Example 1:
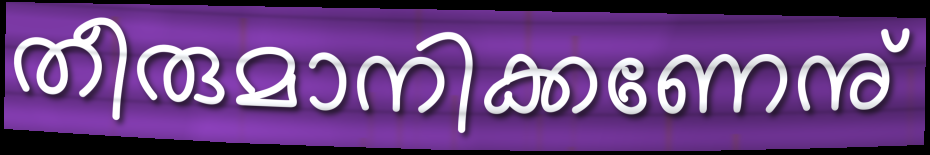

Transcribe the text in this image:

തീരുമാനിക്കണേനു്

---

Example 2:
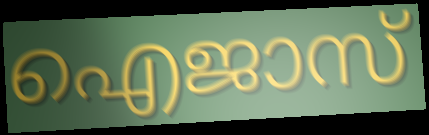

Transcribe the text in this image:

ഐജാസ്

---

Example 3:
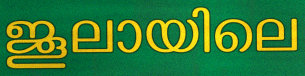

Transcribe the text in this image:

ജൂലായിലെ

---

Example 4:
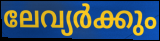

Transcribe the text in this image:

ലേവ്യർക്കും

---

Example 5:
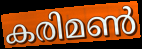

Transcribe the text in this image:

കരിമൺ